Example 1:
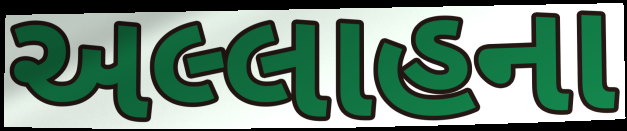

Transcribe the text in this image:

અલ્લાહના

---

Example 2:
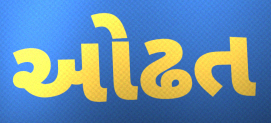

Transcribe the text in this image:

ઓઢત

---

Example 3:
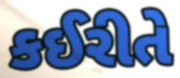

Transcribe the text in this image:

કઈરીતે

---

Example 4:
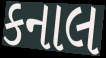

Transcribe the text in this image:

કનાલ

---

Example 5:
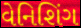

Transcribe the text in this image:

વેનિશિંગ